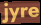
jyre